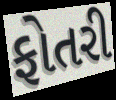
ફોતરી